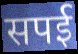
सपई